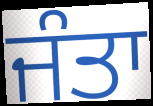
ਜੰਤਾ